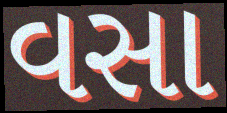
વસા